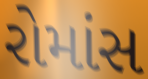
રોમાંસ